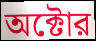
অক্টোর